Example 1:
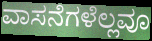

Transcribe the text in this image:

ವಾಸನೆಗಳೆಲ್ಲವೂ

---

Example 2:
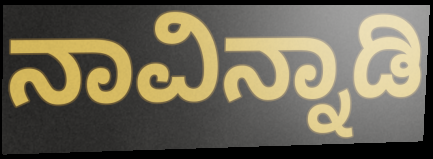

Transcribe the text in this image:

ನಾವಿನ್ನಾಡಿ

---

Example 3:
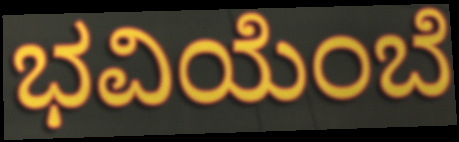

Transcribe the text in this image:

ಭವಿಯೆಂಬೆ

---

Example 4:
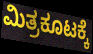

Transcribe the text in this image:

ಮಿತ್ರಕೂಟಕ್ಕೆ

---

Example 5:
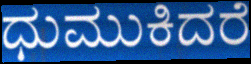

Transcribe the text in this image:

ಧುಮುಕಿದರೆ